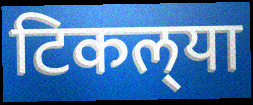
टिकल्या